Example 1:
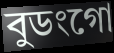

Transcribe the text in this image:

বুডংগো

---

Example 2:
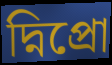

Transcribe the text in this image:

দ্নিপ্রো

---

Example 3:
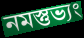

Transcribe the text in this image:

নমস্তুভ্যং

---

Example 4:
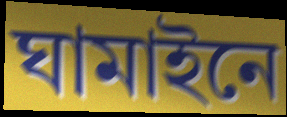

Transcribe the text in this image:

ঘামাইনে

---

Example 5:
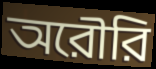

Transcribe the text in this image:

অরৌরি